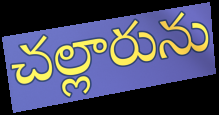
చల్లారును